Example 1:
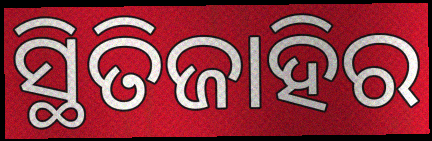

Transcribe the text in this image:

ସ୍ଥିତିଜାହିର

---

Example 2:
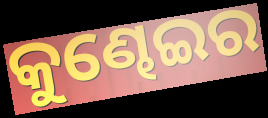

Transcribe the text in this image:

କୁଣ୍ଢେଇର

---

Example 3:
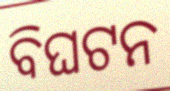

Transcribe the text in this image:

ବିଘଟନ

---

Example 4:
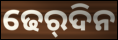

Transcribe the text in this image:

ଢେର୍‌ଦିନ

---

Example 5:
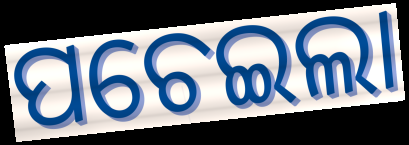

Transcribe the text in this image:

ପଚେଇଲା